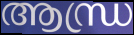
ആന്ധ്ര